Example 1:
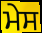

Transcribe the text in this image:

ਮੇਸ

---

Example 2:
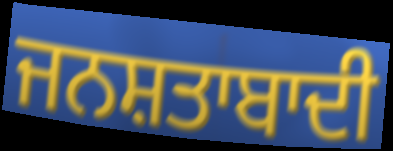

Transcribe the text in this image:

ਜਨਸ਼ਤਾਬਾਦੀ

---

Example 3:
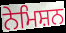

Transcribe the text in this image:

ਨੇਮਿਸ਼ਨ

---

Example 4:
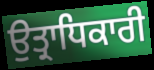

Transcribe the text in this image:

ਉਤ੍ਰਾਧਿਕਾਰੀ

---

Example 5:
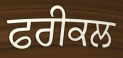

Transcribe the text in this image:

ਫਰੀਕਲ